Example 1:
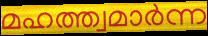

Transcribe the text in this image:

മഹത്ത്വമാർന്ന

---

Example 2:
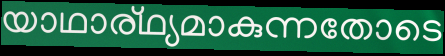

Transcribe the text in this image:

യാഥാര്ഥ്യമാകുന്നതോടെ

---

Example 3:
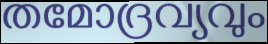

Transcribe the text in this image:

തമോദ്രവ്യവും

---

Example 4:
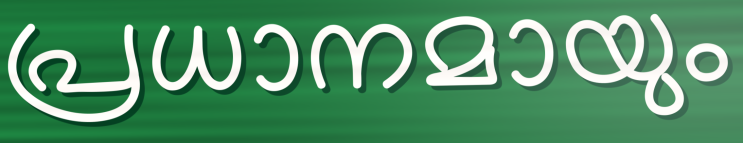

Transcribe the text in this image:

പ്രധാനമായും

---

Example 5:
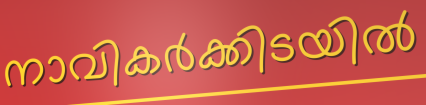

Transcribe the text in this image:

നാവികർക്കിടയിൽ